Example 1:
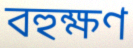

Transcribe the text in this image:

বহুক্ষণ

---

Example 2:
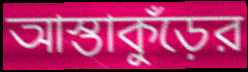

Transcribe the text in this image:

আস্তাকুঁড়ের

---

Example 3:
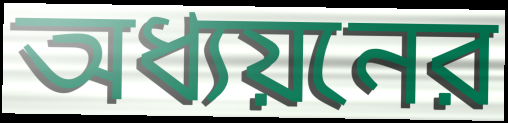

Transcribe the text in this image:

অধ্যয়নের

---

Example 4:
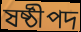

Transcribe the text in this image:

ষষ্ঠীপদ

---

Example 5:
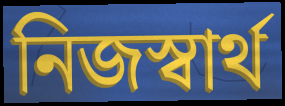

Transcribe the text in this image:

নিজস্বার্থ